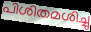
പിശിതമശിച്ചു